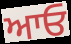
ਆਓ